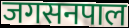
जगसनपाल